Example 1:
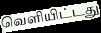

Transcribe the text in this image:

வெளியிட்டது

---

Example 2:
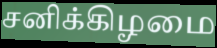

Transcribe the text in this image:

சனிக்கிழமை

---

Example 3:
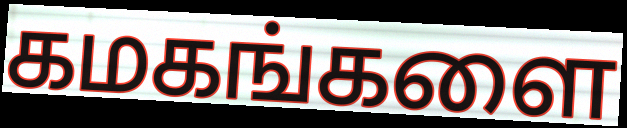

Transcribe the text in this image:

கமகங்களை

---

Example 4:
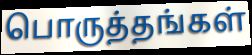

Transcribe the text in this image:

பொருத்தங்கள்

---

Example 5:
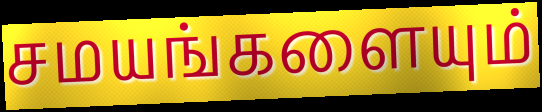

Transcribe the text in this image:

சமயங்களையும்